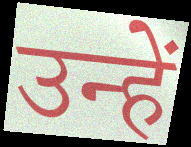
उन्हें